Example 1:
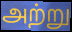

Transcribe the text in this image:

அற்று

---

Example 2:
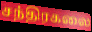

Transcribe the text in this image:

சந்திரகலை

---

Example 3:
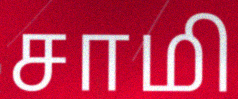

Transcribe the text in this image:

சாமி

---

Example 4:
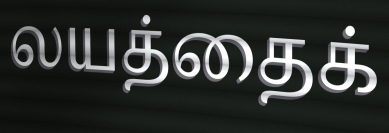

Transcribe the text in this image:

லயத்தைக்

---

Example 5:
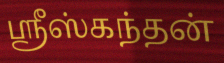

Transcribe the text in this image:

ஸ்ரீஸ்கந்தன்